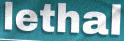
lethal